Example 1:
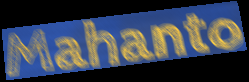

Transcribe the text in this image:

Mahanto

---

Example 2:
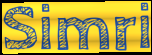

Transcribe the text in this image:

Simri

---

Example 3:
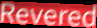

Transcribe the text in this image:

Revered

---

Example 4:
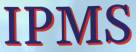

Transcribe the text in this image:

IPMS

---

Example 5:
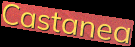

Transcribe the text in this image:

Castanea